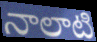
నాలాటి